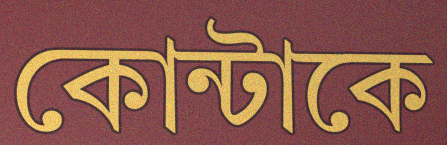
কোন্টাকে